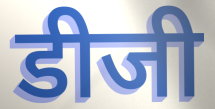
डीजी